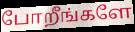
போறீங்களே